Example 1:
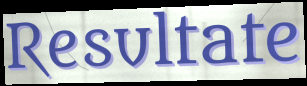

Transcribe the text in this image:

Resultate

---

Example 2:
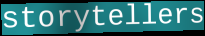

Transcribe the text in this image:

storytellers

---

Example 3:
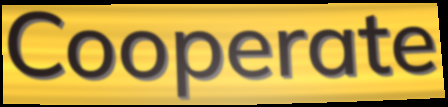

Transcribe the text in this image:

Cooperate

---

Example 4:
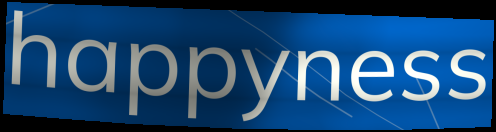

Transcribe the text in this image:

happyness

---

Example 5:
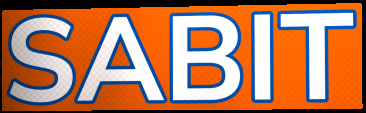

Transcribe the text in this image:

SABIT